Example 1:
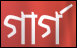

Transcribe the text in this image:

গাৰ্গ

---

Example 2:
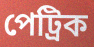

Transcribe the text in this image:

পেট্ৰিক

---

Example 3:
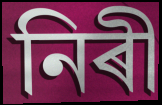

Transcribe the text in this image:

নিৰী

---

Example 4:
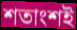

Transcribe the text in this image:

শতাংশই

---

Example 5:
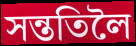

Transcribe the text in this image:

সন্ততিলৈ